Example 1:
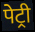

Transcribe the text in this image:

पेट्री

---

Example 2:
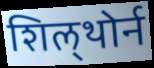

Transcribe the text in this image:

शिल्थोर्न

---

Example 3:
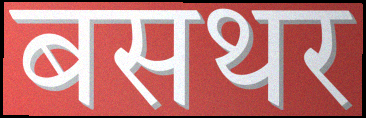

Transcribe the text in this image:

बसथर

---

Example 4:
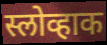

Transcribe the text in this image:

स्लोव्हाक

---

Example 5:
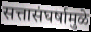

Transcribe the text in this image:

सत्तासंघर्षामुळे